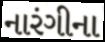
નારંગીના